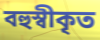
বহুস্বীকৃত